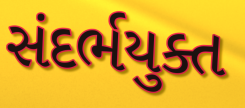
સંદર્ભયુક્ત